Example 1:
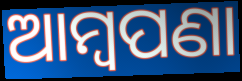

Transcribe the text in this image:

ଆମ୍ବପଣା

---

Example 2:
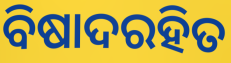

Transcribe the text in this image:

ବିଷାଦରହିତ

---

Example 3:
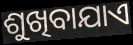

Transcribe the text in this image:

ଶୁଖିବାଯାଏ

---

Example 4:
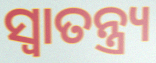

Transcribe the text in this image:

ସ୍ଵାତନ୍ତ୍ର୍ୟ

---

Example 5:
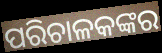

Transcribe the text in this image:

ପରିଚାଳକଙ୍କର